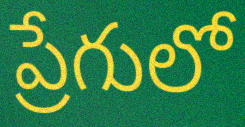
ప్రేగులో